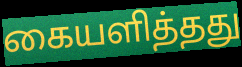
கையளித்தது